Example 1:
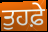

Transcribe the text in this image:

ਤੁਹਫ਼ੇ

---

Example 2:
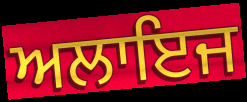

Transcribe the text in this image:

ਅਲਾਇਜ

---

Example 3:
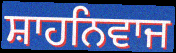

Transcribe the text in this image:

ਸ਼ਾਹਨਿਵਾਜ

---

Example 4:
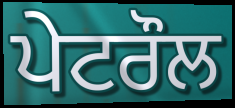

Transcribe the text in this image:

ਪੇਟਰੌਲ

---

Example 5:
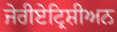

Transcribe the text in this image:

ਜੇਰੀਏਟ੍ਰਿਸ਼ੀਅਨ